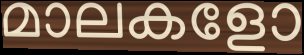
മാലകളോ